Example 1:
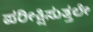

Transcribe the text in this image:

ಪರೀಕ್ಷಿಸುತ್ತಲೇ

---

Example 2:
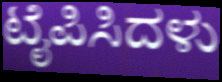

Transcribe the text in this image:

ಟೈಪಿಸಿದಳು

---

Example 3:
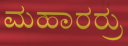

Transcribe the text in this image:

ಮಹಾರರ್ರು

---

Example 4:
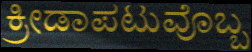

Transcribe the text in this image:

ಕ್ರೀಡಾಪಟುವೊಬ್ಬ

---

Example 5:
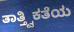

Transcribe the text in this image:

ತಾತ್ತ್ವಿಕತೆಯ